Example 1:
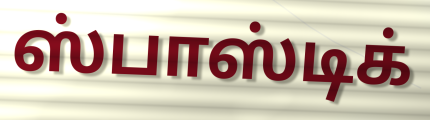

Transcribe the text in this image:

ஸ்பாஸ்டிக்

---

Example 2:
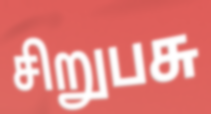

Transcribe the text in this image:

சிறுபசு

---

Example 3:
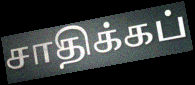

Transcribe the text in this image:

சாதிக்கப்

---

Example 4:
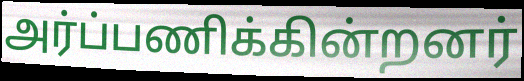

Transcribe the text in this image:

அர்ப்பணிக்கின்றனர்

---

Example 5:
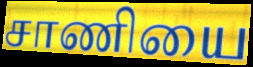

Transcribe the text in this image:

சாணியை